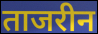
ताजरीन